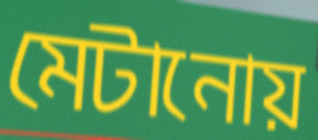
মেটানোয়